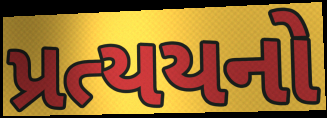
પ્રત્યયનો